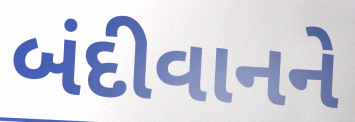
બંદીવાનને